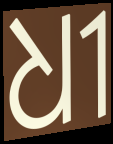
ଧୀ